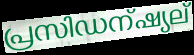
പ്രസിഡന്ഷ്യല്